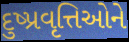
દુષ્પ્રવૃત્તિઓને